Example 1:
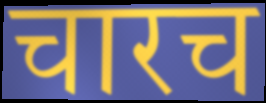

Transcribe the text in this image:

चारच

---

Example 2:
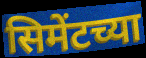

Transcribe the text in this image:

सिमेंटच्या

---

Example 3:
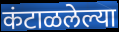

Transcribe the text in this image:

कंटाळलेल्या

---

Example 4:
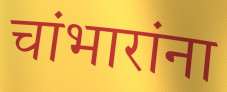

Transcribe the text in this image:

चांभारांना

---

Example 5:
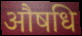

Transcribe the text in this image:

औषधि